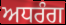
ਅਧਰੰਗ